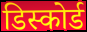
डिस्कोर्ड